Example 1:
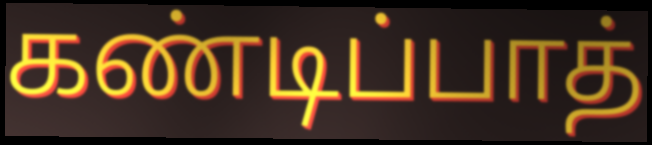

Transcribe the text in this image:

கண்டிப்பாத்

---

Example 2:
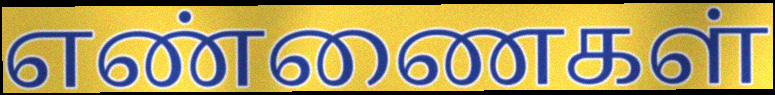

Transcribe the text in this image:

எண்ணைகள்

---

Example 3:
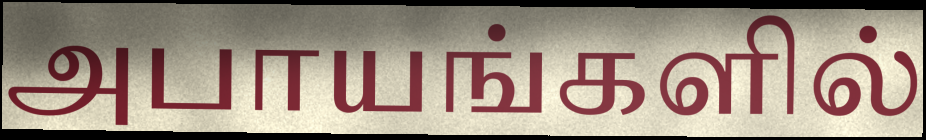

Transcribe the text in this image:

அபாயங்களில்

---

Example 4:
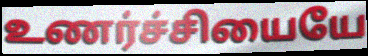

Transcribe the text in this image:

உணர்ச்சியையே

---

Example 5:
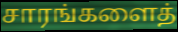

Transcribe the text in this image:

சாரங்களைத்